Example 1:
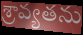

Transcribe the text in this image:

శ్రావ్యతను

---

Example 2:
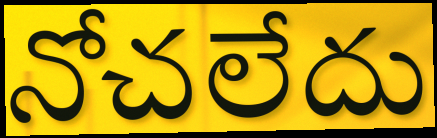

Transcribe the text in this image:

నోచలేదు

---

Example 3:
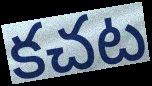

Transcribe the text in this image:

కచట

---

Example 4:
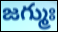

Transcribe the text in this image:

జగ్ముః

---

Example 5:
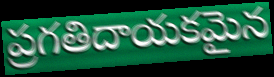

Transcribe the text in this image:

ప్రగతిదాయకమైన